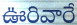
ఊరివారే